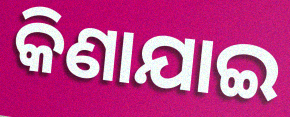
କିଣାଯାଇ